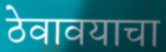
ठेवावयाचा